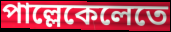
পাল্লেকেলেতে